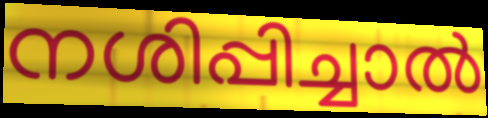
നശിപ്പിച്ചാൽ